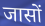
जासों